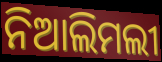
ନିଆଲିମଲୀ